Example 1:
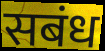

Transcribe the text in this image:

सबंध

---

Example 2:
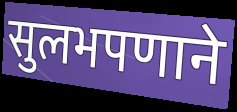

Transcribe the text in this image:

सुलभपणाने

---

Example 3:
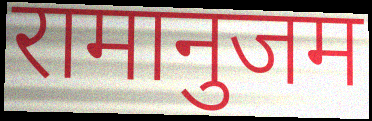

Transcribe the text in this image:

रामानुजम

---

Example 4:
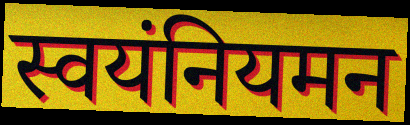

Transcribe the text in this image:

स्वयंनियमन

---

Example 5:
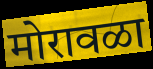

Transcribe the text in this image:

मोरावळा